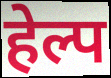
हेल्प